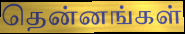
தென்னங்கள்